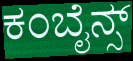
ಕಂಬೈನ್ಸ್